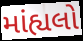
માંહ્યલો